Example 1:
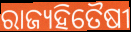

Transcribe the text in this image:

ରାଜ୍ୟହିତୈଷୀ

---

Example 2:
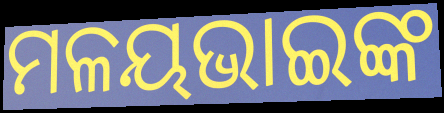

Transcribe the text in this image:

ମଳୟଭାଇଙ୍କ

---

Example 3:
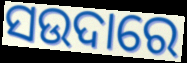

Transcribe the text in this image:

ସଉଦାରେ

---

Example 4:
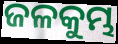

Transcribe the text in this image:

ଜଳକୁମ୍ଭ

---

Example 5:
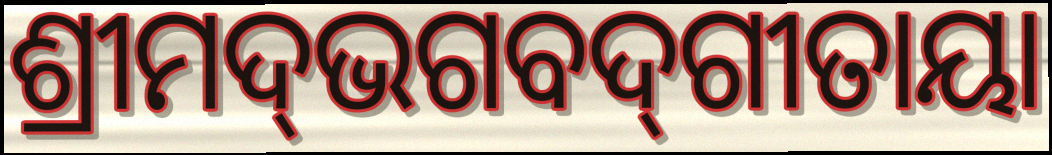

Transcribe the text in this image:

ଶ୍ରୀମଦ୍‌ଭଗବଦ୍‌ଗୀତାୟା